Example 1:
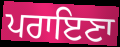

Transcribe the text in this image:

ਪਰਾਇਣਾ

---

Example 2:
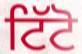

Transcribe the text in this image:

ਟਿੱਟੋ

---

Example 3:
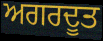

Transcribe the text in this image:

ਅਗਰਦੂਤ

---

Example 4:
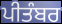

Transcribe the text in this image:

ਪੀਤੰਬਰ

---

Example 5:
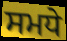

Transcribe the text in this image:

ਸਮਧੇ